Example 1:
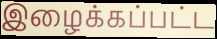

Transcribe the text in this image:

இழைக்கப்பட்ட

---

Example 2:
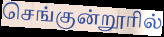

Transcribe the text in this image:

செங்குன்றூரில்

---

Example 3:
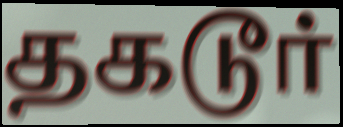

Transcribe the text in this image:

தகடூர்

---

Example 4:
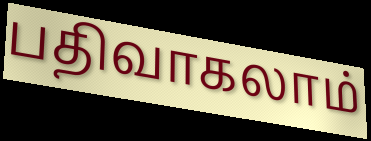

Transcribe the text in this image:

பதிவாகலாம்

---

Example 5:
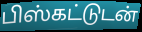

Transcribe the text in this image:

பிஸ்கட்டுடன்